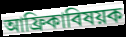
আফ্রিকাবিষয়ক